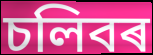
চলিবৰ